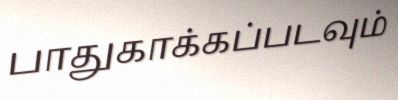
பாதுகாக்கப்படவும்